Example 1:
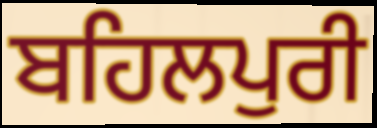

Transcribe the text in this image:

ਬਹਿਲਪੁਰੀ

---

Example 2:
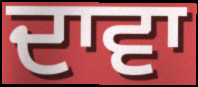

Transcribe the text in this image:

ਦਾਵਾ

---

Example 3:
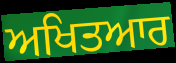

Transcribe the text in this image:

ਅਖਿਤਆਰ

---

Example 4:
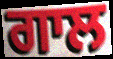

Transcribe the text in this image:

ਗਾਲ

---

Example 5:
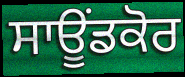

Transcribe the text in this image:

ਸਾਊਂਡਕੋਰ